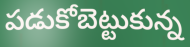
పడుకోబెట్టుకున్న